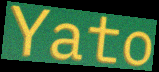
Yato